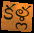
కళ్ల